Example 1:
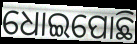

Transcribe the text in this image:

ଧୋଇପୋଛି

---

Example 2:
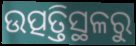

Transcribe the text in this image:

ଉତ୍ପତ୍ତିସ୍ଥଳରୁ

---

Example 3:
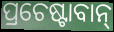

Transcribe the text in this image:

ପ୍ରଚେଷ୍ଟାବାନ୍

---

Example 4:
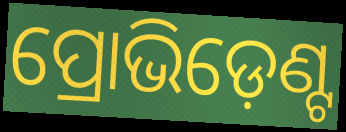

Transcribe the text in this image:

ପ୍ରୋଭିଡ଼େଣ୍ଟ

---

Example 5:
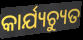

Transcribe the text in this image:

କାର୍ଯ୍ୟଚ୍ୟୁତ